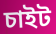
চাইট